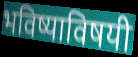
भविष्याविषयी